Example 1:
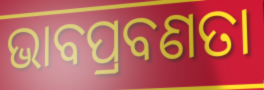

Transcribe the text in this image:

ଭାବପ୍ରବଣତା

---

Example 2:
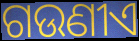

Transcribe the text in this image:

ଗଉଣୀଏ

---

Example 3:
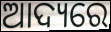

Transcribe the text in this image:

ଆଦ୍ୟରେ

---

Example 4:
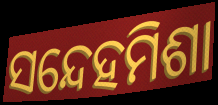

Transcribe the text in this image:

ସନ୍ଦେହମିଶା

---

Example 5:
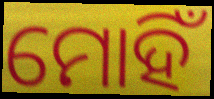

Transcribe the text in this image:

ମୋହିଁ